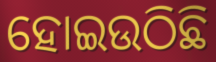
ହୋଇଉଠିଛି